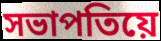
সভাপতিয়ে